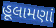
હૂલામણાં